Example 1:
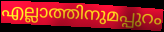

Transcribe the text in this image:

എല്ലാത്തിനുമപ്പുറം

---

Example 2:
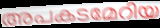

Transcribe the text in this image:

അപകടമേറിയ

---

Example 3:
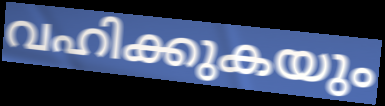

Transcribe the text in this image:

വഹിക്കുകയും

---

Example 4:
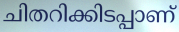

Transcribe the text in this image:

ചിതറിക്കിടപ്പാണ്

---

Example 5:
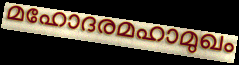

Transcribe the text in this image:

മഹോദരമഹാമുഖം